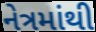
નેત્રમાંથી